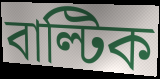
বাল্টিক